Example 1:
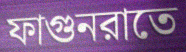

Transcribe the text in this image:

ফাগুনরাতে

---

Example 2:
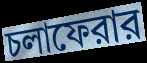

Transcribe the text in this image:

চলাফেরার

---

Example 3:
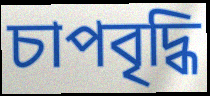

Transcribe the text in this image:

চাপবৃদ্ধি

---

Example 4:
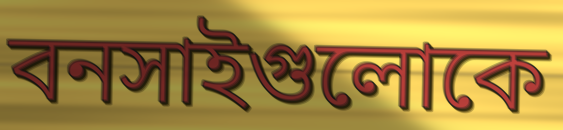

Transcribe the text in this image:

বনসাইগুলোকে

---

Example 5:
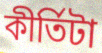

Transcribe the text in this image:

কীর্তিটা